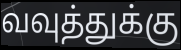
வவுத்துக்கு